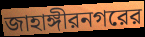
জাহাঙ্গীরনগরের